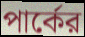
পার্কের